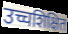
उच्चशिक्षित